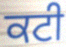
ਕਟੀ